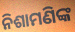
ନିଶାମଣିଙ୍କ